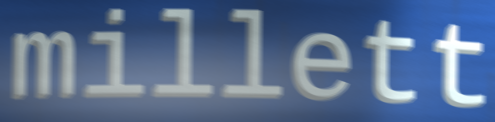
millett